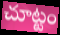
చూట్టం